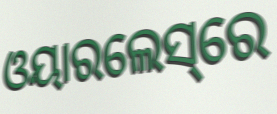
ଓୟାରଲେସ୍‌ରେ